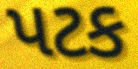
પટક